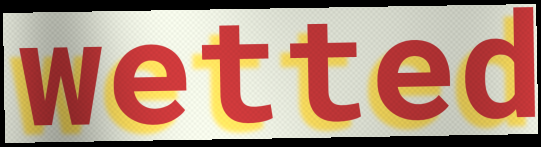
wetted